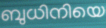
ബുധിനിയെ